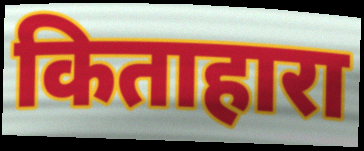
किताहारा